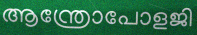
ആന്ത്രോപോളജി